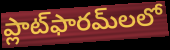
ప్లాట్‌ఫారమ్‌లలో